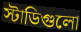
স্টাডিগুলো